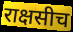
राक्षसीच